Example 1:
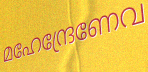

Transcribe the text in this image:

മഹേന്ദ്രേണേവ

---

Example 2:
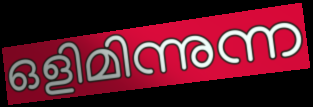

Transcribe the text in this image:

ഒളിമിന്നുന്ന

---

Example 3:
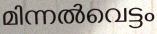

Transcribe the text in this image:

മിന്നൽവെട്ടം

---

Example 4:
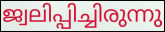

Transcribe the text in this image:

ജ്വലിപ്പിച്ചിരുന്നു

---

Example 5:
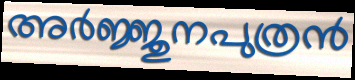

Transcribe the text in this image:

അർജ്ജുനപുത്രൻ